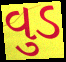
વુડ